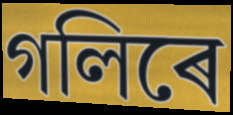
গলিৰে